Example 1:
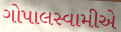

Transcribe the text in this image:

ગોપાલસ્વામીએ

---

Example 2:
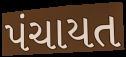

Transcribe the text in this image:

પંચાયત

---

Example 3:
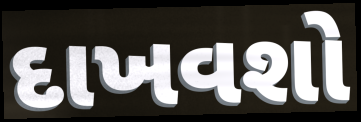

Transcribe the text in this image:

દાખવશો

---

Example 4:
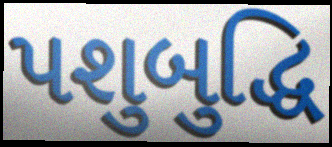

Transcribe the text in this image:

પશુબુદ્ધિ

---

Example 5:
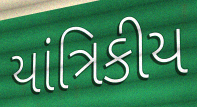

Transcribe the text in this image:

યાંત્રિકીય